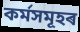
কৰ্মসমূহৰ